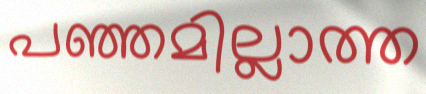
പഞ്ഞമില്ലാത്ത